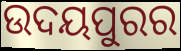
ଉଦୟପୁରର